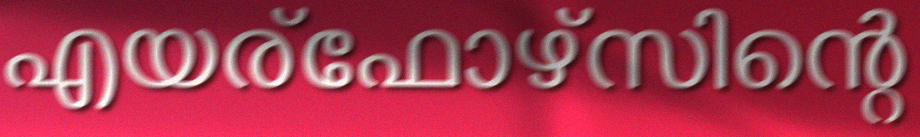
എയര്ഫോഴ്സിന്റെ